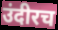
उंदीरच